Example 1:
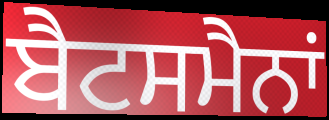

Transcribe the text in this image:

ਬੈਟਸਮੈਨਾਂ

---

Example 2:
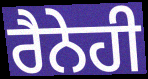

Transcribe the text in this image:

ਰੈਨੇਹੀ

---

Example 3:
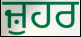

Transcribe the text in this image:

ਜ਼ੁਹਰ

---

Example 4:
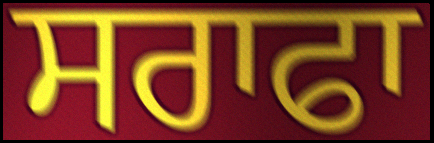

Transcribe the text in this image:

ਸਰਾਫਾ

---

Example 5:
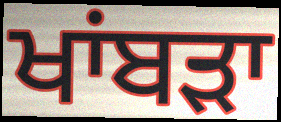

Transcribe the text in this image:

ਖਾਂਬੜਾ